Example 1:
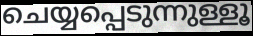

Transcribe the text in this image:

ചെയ്യപ്പെടുന്നുള്ളൂ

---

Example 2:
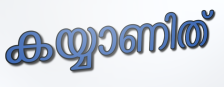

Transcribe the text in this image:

കയ്യാണിത്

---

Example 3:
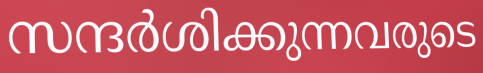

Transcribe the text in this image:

സന്ദർശിക്കുന്നവരുടെ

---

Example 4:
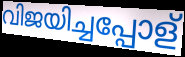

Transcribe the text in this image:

വിജയിച്ചപ്പോള്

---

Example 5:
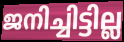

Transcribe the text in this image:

ജനിച്ചിട്ടില്ല